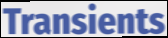
Transients